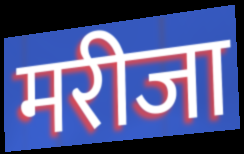
मरीजा